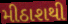
મીઠાશથી